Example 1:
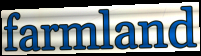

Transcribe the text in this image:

farmland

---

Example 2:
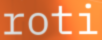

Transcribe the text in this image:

roti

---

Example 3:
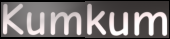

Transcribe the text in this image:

Kumkum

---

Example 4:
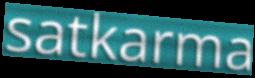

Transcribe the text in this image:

satkarma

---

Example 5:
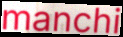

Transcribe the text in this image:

manchi